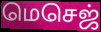
மெசெஜ்